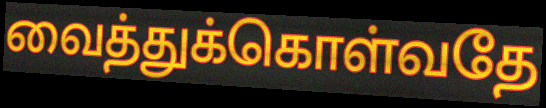
வைத்துக்கொள்வதே